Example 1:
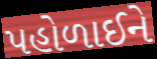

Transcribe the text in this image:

પહોળાઈને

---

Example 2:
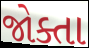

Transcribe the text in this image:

જોક્તા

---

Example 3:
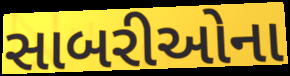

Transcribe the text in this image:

સાબરીઓના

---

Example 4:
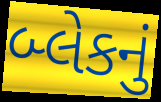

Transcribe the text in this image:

બ્લેકનું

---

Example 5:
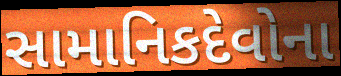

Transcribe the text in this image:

સામાનિકદેવોના